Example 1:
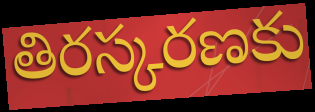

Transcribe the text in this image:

తిరస్కరణకు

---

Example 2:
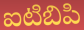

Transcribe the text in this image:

ఐటిబిపి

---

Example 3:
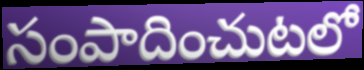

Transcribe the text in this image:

సంపాదించుటలో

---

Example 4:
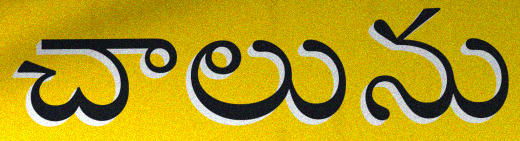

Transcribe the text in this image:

చాలును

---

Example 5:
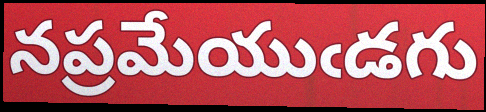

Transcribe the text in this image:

నప్రమేయుఁడగు